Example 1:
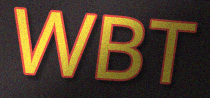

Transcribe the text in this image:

WBT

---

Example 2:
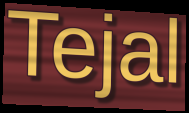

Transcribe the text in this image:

Tejal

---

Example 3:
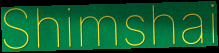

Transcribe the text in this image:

Shimshai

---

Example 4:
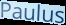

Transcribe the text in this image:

Paulus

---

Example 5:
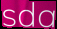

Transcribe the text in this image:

sda